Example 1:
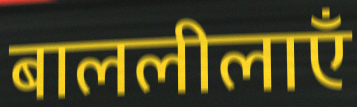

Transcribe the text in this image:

बाललीलाएँ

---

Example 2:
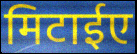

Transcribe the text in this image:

मिटाईए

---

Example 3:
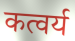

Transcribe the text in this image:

कत्वर्य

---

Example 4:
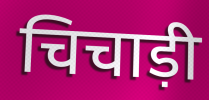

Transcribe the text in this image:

चिचाड़ी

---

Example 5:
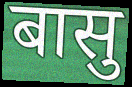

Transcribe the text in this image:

बासु